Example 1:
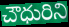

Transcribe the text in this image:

చౌధురిని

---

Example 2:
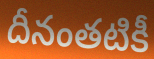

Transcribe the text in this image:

దీనంతటికీ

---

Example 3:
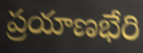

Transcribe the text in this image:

ప్రయాణభేరి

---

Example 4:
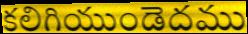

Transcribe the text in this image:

కలిగియుండెదము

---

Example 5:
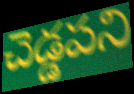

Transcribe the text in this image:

చెడ్డపని